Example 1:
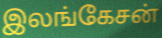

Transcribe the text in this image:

இலங்கேசன்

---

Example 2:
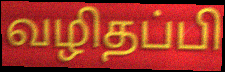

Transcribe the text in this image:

வழிதப்பி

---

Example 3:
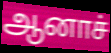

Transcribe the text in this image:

ஆனாச்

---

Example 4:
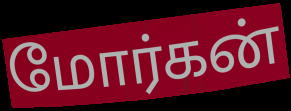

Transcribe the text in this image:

மோர்கன்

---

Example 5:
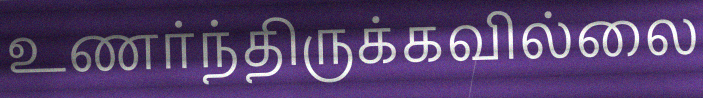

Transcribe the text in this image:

உணர்ந்திருக்கவில்லை